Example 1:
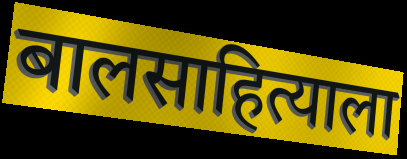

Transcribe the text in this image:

बालसाहित्याला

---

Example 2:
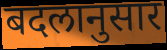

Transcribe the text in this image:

बदलानुसार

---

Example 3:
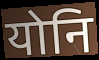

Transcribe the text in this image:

योनि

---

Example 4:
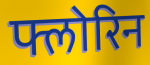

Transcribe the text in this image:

फ्लोरिन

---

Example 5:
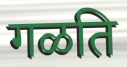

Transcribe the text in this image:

गळति